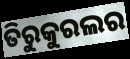
ତିରୁକୁରଲର